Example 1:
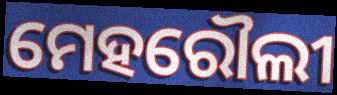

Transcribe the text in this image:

ମେହରୌଲୀ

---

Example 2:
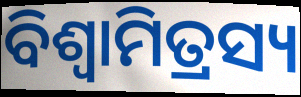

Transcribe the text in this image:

ବିଶ୍ଵାମିତ୍ରସ୍ୟ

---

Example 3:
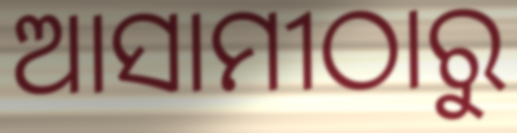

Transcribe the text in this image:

ଆସାମୀଠାରୁ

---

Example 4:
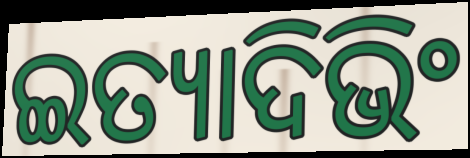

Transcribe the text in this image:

ଇତ୍ୟାଦିଭିଂ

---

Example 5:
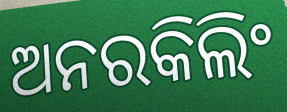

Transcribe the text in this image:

ଅନରକିଲିଂ